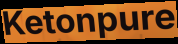
Ketonpure